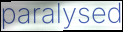
paralysed